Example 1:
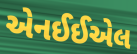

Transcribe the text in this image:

એનઈઈએલ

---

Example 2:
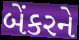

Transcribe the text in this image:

બેંકરને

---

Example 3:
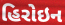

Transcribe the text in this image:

હિરોઇન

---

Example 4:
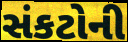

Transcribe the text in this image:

સંકટોની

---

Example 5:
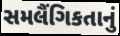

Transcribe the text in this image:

સમલૈંગિકતાનું